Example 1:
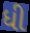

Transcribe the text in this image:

ધી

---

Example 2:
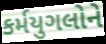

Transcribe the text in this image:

કર્મયુગલોને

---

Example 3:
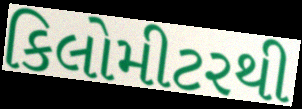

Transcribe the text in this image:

કિલોમીટરથી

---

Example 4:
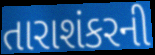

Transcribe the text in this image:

તારાશંકરની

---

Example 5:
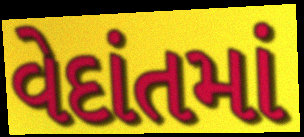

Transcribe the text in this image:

વેદાંતમાં